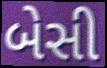
બેસી